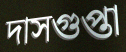
দাসগুপ্তা